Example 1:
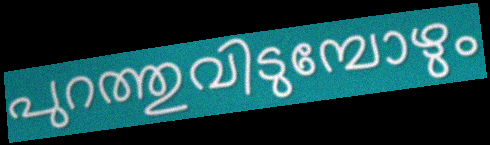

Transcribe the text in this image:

പുറത്തുവിടുമ്പോഴും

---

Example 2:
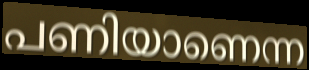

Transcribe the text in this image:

പണിയാണെന്ന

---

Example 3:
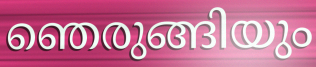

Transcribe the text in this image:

ഞെരുങ്ങിയും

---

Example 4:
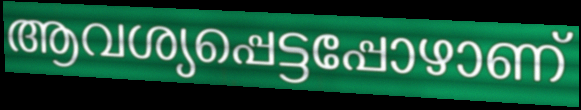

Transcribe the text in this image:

ആവശ്യപ്പെട്ടപ്പോഴാണ്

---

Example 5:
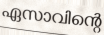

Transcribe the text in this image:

ഏസാവിന്റെ